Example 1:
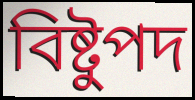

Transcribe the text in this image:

বিষ্টুপদ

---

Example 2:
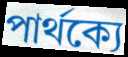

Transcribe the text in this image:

পার্থক্যে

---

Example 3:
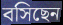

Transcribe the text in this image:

বসিছেন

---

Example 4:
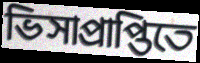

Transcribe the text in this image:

ভিসাপ্রাপ্তিতে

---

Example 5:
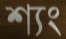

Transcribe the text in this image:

শ্যং